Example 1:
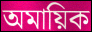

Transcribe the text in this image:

অমায়িক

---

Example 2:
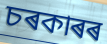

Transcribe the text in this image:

চৰকাৰৰ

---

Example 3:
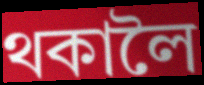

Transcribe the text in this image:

থকালৈ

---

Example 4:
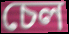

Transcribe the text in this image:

চেল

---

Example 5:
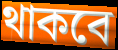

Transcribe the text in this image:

থাকবে